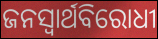
ଜନସ୍ଵାର୍ଥବିରୋଧୀ